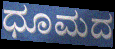
ಧೂಮದ